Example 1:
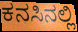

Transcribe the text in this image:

ಕನಸಿನಲ್ಲಿ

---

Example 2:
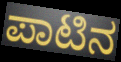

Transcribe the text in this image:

ಪಾಟಿನ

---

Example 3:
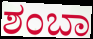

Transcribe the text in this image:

ಶಂಬಾ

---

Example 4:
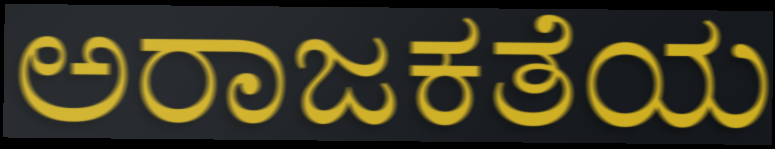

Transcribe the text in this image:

ಅರಾಜಕತೆಯ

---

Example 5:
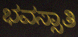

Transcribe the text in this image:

ಭವಸ್ಸಾತಿ